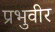
प्रभुवीर